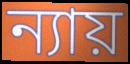
ন্যায়